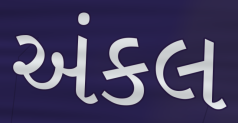
અંકલ